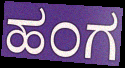
ಹಂಗ